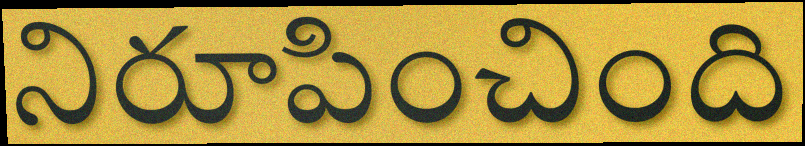
నిరూపించింది